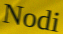
Nodi